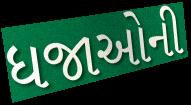
ધજાઓની